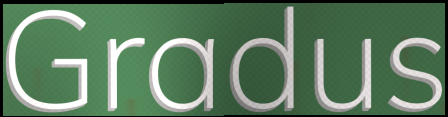
Gradus